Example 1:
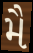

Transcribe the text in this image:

મૈ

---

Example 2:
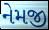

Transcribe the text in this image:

નેમજી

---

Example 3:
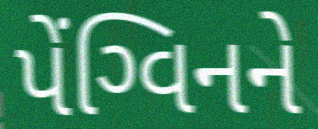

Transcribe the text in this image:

પેંગ્વિનને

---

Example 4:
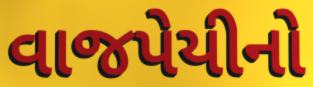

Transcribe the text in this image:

વાજપેયીનો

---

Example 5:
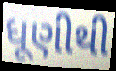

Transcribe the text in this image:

ધૂણીથી